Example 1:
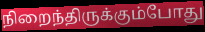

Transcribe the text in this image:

நிறைந்திருக்கும்போது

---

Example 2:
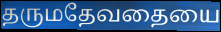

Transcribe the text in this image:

தருமதேவதையை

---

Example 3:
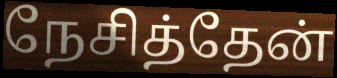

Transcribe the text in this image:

நேசித்தேன்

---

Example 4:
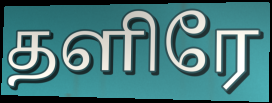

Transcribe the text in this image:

தளிரே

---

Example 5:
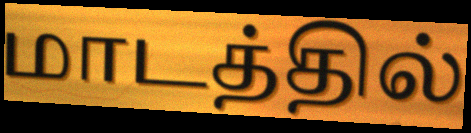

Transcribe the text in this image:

மாடத்தில்